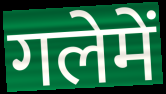
गलेमें